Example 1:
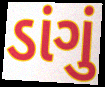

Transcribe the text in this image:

ડાંગું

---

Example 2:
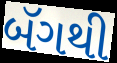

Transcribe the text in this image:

બૅગથી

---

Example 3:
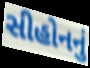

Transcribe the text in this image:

સીહોનનું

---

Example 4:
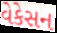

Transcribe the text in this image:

વેકેસન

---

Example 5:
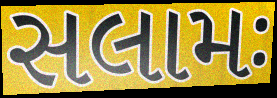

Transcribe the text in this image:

સલામઃ